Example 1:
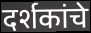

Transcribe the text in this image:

दर्शकांचे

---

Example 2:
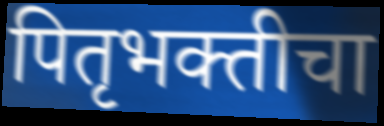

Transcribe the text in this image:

पितृभक्तीचा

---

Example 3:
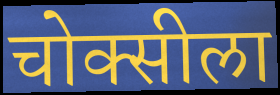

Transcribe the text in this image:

चोक्सीला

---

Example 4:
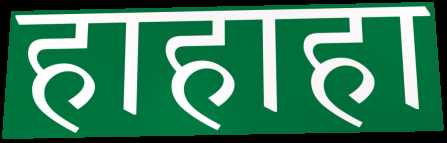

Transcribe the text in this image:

हाहाहा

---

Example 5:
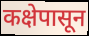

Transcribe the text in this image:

कक्षेपासून